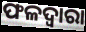
ଫଳଦ୍ୱାରା